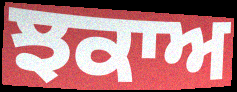
ਝਕਾਅ